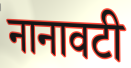
नानावटी